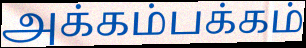
அக்கம்பக்கம்